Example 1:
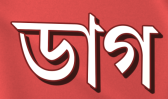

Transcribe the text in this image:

ডাগ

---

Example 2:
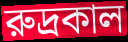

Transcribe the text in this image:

রুদ্রকাল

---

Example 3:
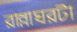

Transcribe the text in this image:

রান্নাঘরটা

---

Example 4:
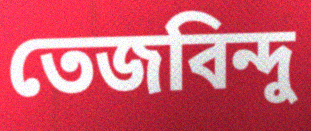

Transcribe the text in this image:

তেজবিন্দু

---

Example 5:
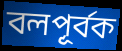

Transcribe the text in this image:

বলপূর্বক